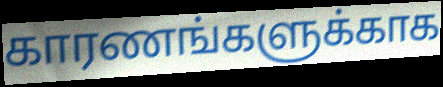
காரணங்களுக்காக